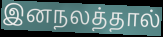
இனநலத்தால்